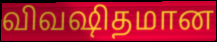
விவஷிதமான